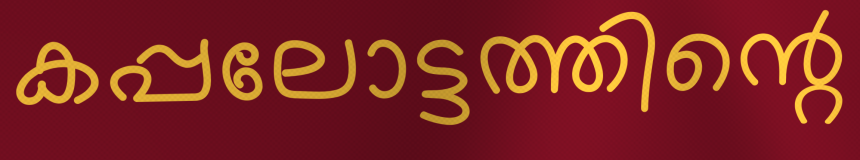
കപ്പലോട്ടത്തിന്റെ